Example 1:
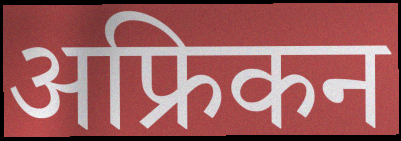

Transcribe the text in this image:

अफ्रिकन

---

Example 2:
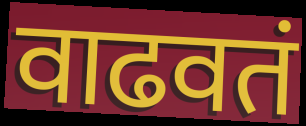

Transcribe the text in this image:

वाढवतं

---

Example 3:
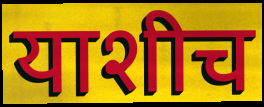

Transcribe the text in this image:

याशीच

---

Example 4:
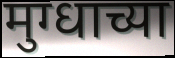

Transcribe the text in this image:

मुग्धाच्या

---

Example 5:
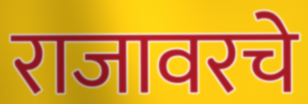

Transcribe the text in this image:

राजावरचे